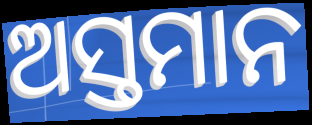
ଅସ୍ତମାନ